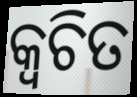
କ୍ବଚିତ